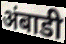
अंबाडी